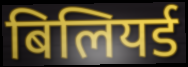
बिलियर्ड